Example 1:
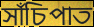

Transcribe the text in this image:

সাঁচিপাত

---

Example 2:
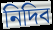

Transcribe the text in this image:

নিদিব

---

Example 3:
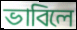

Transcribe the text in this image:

ভাবিলে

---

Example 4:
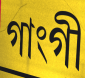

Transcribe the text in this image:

গাংগী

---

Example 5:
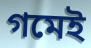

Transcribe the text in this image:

গমেই